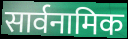
सार्वनामिक